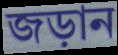
জড়ান